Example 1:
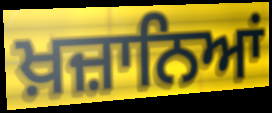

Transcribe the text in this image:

ਖ਼ਜ਼ਾਨਿਆਂ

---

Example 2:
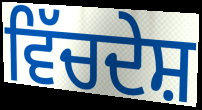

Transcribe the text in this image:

ਵਿੱਚਦੇਸ਼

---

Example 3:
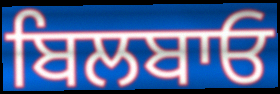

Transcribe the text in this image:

ਬਿਲਬਾਓ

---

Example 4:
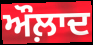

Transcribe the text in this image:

ਔਲ਼ਾਦ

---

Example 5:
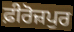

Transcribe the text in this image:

ਫ਼ੀਰੋਜ਼ਪੁਰ